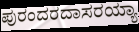
ಪುರಂದರದಾಸರಯ್ಯಾ